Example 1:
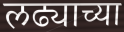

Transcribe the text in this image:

लढ्याच्या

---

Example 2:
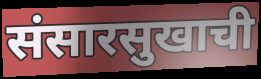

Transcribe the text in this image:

संसारसुखाची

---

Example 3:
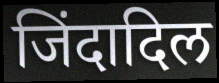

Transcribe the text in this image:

जिंदादिल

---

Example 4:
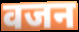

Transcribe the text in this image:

वजन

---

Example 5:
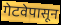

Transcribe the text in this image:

गेटवेपासून